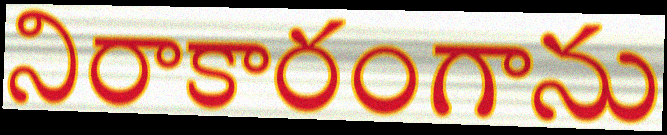
నిరాకారంగాను